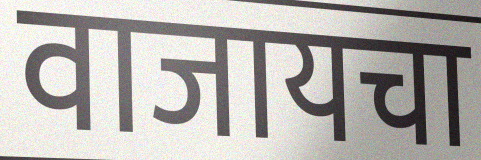
वाजायचा